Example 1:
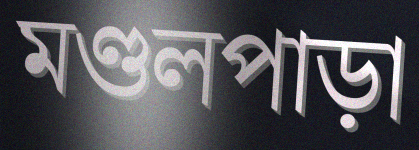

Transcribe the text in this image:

মণ্ডলপাড়া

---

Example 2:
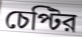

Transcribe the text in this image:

চেপ্টির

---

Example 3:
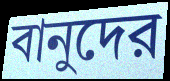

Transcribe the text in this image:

বানুদের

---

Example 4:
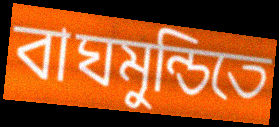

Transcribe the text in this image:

বাঘমুন্ডিতে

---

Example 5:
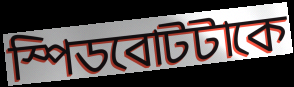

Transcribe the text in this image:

স্পিডবোটটাকে